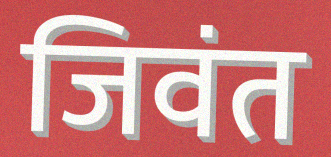
जिवंत